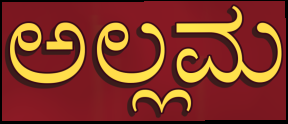
ಅಲ್ಲಮ